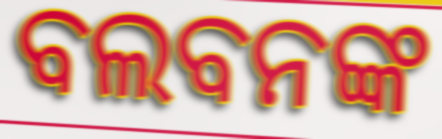
ବଲବନଙ୍କ